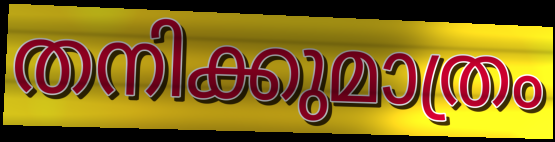
തനിക്കുമാത്രം